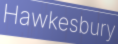
Hawkesbury